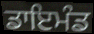
ਡਾਇਮੰਡ